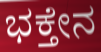
ಭಕ್ತೇನ